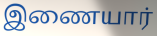
இணையார்